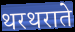
थरथराते